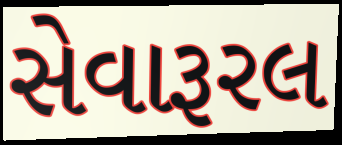
સેવારૂરલ